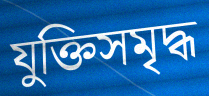
যুক্তিসমৃদ্ধ